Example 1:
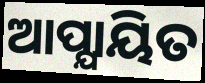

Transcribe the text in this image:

ଆପ୍ଯାୟିତ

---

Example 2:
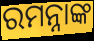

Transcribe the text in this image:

ରମନ୍ନାଙ୍କ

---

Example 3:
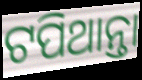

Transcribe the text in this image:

ଟପିଥାନ୍ତା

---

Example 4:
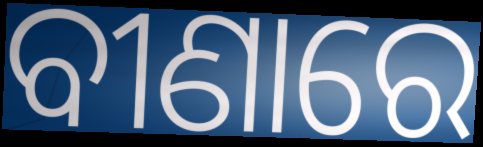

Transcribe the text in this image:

ବୀଣାରେ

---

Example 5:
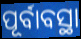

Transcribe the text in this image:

ପୂର୍ବାବସ୍ଥା